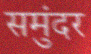
समुंदर